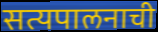
सत्यपालनाची